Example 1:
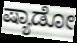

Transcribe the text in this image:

ಷ್ಯಾಡೋ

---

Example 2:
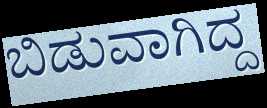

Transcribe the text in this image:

ಬಿಡುವಾಗಿದ್ದ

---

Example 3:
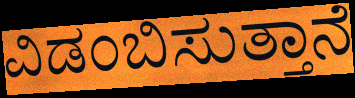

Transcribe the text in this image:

ವಿಡಂಬಿಸುತ್ತಾನೆ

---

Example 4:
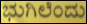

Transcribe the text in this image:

ಭುಗಿಲೆಂದು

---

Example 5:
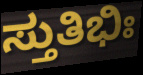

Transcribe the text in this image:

ಸ್ತುತಿಭಿಃ